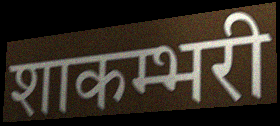
शाकम्भरी